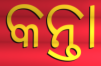
କନ୍ତା